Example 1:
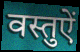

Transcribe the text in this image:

वस्तुऐं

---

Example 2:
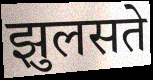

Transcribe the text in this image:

झुलसते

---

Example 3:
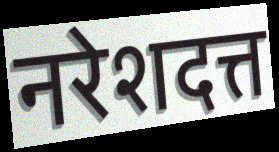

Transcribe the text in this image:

नरेशदत्त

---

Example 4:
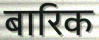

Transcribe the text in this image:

बारिक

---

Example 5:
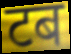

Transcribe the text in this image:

टब